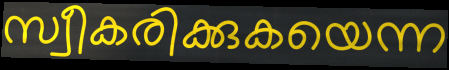
സ്വീകരിക്കുകയെന്ന